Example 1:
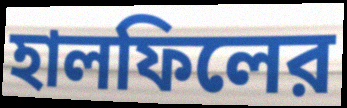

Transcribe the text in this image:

হালফিলের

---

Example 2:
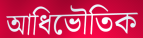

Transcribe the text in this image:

আধিভৌতিক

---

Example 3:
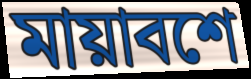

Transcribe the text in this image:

মায়াবশে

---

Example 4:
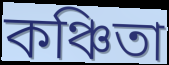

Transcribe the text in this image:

কঞ্চিতা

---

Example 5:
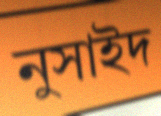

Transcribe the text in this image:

নুসাইদ